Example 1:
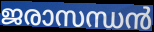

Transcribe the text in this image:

ജരാസന്ധൻ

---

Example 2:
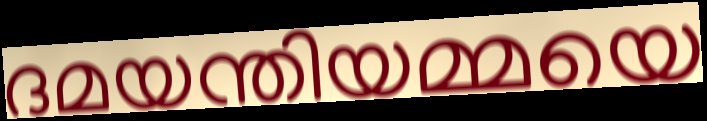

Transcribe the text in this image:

ദമയന്തിയമ്മയെ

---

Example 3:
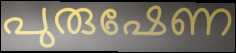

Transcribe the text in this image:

പുരുഷേണ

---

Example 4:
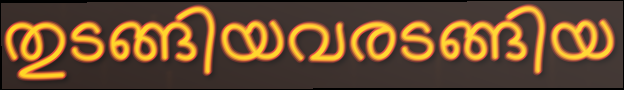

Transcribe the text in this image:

തുടങ്ങിയവരടങ്ങിയ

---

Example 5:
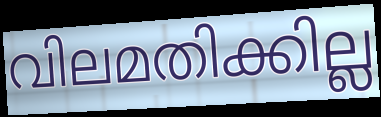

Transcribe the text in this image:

വിലമതിക്കില്ല